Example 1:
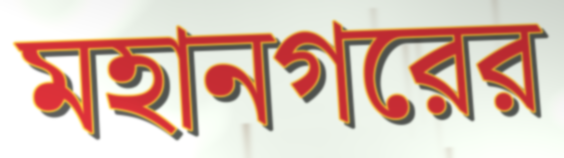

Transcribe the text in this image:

মহানগরের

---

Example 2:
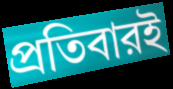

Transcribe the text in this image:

প্রতিবারই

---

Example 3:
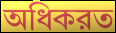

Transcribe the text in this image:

অধিকরত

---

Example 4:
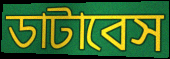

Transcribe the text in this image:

ডাটাবেস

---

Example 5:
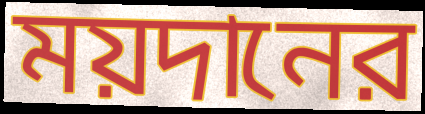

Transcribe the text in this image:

ময়দানের